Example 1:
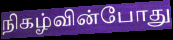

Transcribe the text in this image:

நிகழ்வின்போது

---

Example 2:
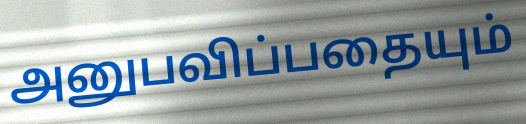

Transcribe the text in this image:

அனுபவிப்பதையும்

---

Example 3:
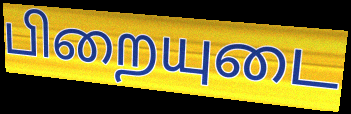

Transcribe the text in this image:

பிறையுடை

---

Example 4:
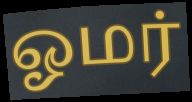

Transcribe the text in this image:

ஓமர்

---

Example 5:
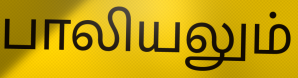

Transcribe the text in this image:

பாலியலும்